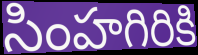
సింహగిరికి